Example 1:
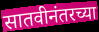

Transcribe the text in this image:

सातवीनंतरच्या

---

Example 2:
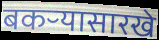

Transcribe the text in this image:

बकऱ्यासारखे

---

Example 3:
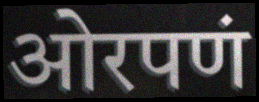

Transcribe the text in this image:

ओरपणं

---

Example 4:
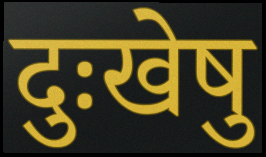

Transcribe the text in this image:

दुःखेषु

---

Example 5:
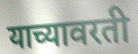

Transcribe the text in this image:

याच्यावरती